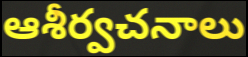
ఆశీర్వచనాలు